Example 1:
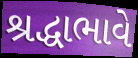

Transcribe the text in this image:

શ્રદ્ધાભાવે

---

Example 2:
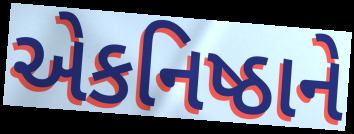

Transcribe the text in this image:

એકનિષ્ઠાને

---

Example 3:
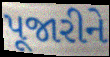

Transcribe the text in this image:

પૂજારીને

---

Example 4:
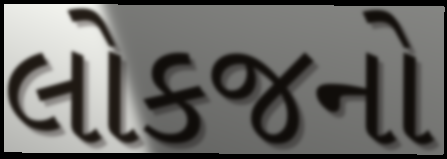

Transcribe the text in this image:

લોકજનો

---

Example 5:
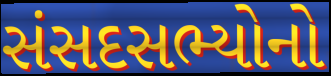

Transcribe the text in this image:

સંસદસભ્યોનો